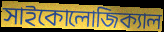
সাইকোলোজিক্যাল